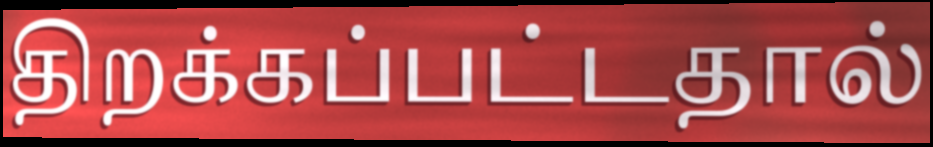
திறக்கப்பட்டதால்